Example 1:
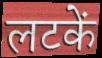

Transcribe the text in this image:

लटकें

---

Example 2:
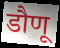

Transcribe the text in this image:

डौणू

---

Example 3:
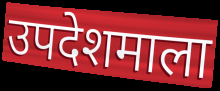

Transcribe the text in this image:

उपदेशमाला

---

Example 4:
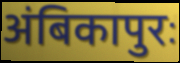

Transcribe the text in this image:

अंबिकापुरः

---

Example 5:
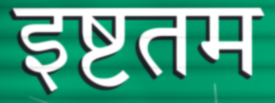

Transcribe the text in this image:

इष्टतम